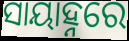
ସାୟାହ୍ନରେ